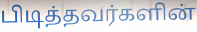
பிடித்தவர்களின்